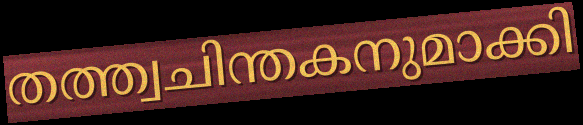
തത്ത്വചിന്തകനുമാക്കി